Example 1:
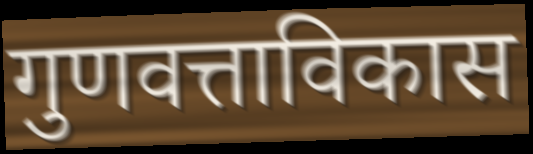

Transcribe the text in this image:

गुणवत्ताविकास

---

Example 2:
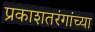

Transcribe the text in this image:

प्रकाशतरंगांच्या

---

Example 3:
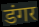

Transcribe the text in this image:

डंगर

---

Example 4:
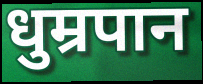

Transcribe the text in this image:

धुम्रपान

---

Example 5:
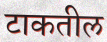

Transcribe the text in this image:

टाकतील